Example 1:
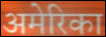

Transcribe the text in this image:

अमेरिका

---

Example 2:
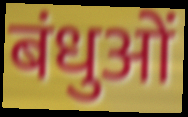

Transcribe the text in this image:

बंधुओं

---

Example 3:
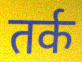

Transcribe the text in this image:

तर्क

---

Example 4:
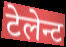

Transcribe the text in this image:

टेलेन्ट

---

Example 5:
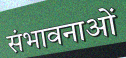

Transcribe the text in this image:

संभावनाओं